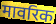
मावरिक